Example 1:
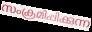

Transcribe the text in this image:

സംക്രമിപ്പിക്കുന്ന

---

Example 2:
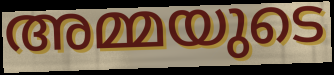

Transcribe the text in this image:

അമ്മയുടെ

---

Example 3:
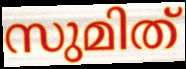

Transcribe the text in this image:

സുമിത്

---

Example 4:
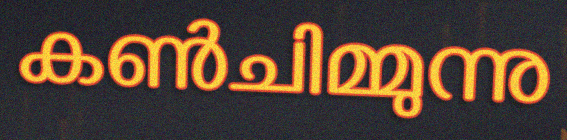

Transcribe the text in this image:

കൺചിമ്മുന്നു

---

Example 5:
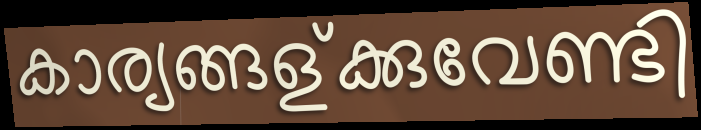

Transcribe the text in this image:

കാര്യങ്ങള്ക്കുവേണ്ടി